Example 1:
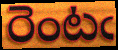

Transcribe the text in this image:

రెంటఁ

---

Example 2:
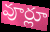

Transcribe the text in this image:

వూర్లూ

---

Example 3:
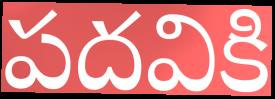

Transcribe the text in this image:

పదవికి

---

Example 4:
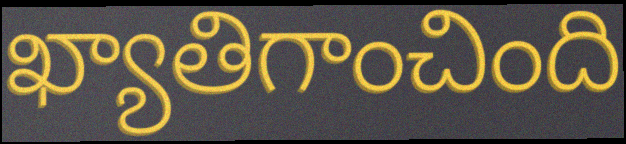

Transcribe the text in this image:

ఖ్యాతిగాంచింది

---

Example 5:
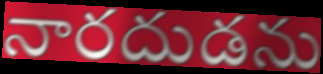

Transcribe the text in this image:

నారదుడను